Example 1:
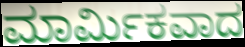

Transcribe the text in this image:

ಮಾರ್ಮಿಕವಾದ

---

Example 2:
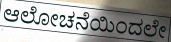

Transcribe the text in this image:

ಆಲೋಚನೆಯಿಂದಲೇ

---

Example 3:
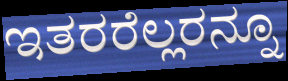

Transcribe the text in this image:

ಇತರರೆಲ್ಲರನ್ನೂ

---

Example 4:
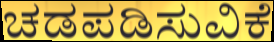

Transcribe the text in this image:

ಚಡಪಡಿಸುವಿಕೆ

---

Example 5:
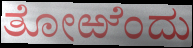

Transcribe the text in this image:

ತೋಱೆಂದು